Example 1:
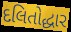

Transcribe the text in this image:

દલિતોદ્ધાર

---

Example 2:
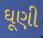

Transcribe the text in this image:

ઘૂણી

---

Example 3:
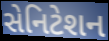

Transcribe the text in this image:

સેનિટેશન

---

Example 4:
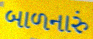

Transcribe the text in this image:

બાળનારું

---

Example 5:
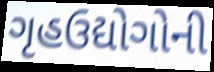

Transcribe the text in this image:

ગૃહઉદ્યોગોની